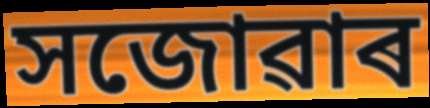
সজোৱাৰ